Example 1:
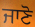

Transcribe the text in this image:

ਜਾਣੋ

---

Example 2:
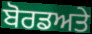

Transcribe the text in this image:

ਬੋਰਡਅਤੇ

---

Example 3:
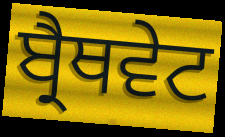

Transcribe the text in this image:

ਬ੍ਰੈਥਵੇਟ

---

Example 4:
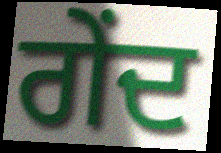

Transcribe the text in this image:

ਗੇਂਦ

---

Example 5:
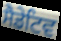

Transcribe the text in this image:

ਸੈਡੇਟਿਵ